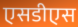
एसडीएस